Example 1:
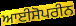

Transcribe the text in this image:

ਆਈਸੋਪਰੀਨ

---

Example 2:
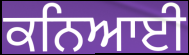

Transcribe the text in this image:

ਕਨਿਆਈ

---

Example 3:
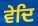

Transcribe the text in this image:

ਵੇਦਿ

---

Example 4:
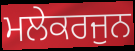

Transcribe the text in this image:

ਮਲੇਕਰਜੁਨ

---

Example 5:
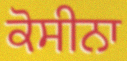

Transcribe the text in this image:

ਕੋਸੀਨਾ